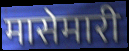
मासेमारी